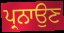
ਪ੍ਰਨਾਉਣ